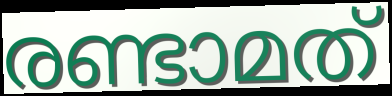
രണ്ടാമത്